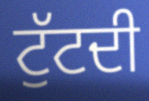
ਟੁੱਟਦੀ